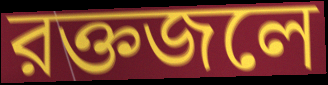
রক্তজলে